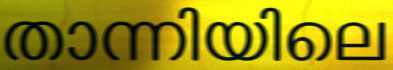
താന്നിയിലെ